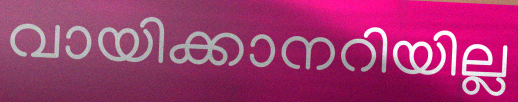
വായിക്കാനറിയില്ല